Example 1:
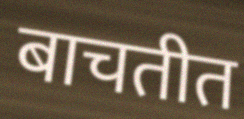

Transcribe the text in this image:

बाचतीत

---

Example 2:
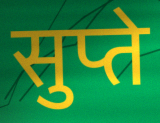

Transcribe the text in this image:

सुप्ते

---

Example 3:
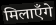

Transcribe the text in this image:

मिलाएँगे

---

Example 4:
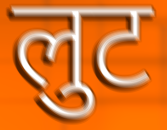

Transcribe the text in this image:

लुट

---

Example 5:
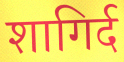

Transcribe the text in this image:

शागिर्द